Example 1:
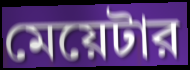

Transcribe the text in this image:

মেয়েটার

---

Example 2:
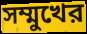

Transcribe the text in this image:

সম্মুখের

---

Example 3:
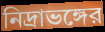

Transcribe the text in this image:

নিদ্রাভঙ্গের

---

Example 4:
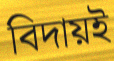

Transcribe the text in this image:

বিদায়ই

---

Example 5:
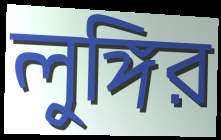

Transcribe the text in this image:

লুঙ্গির